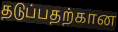
தடுப்பதற்கான